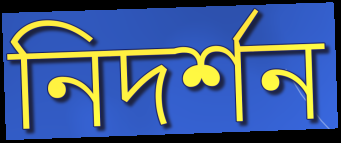
নিদৰ্শন